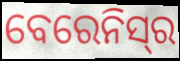
ବେରେନିସ୍‌ର